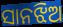
ସାନଝିଅ